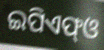
ଇପିଏଫ୍ଓ